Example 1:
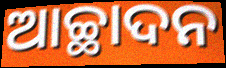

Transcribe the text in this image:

ଆଚ୍ଛାଦନ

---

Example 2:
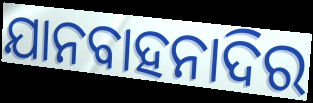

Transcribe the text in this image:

ଯାନବାହନାଦିର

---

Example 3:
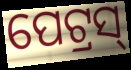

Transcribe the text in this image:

ପେଟ୍ରସ୍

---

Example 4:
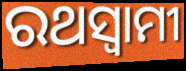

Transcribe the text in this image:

ରଥସ୍ୱାମୀ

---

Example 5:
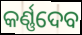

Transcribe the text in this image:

କର୍ଣ୍ଣଦେବ